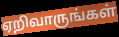
ஏறிவாருங்கள்